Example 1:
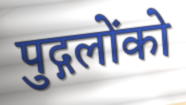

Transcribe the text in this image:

पुद्गलोंको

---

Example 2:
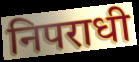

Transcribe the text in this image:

निपराधी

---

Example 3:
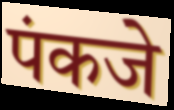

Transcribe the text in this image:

पंकजे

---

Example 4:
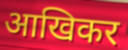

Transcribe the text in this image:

आखिकर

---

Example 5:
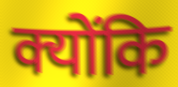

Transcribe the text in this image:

क्‍योंकि